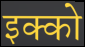
इक्को